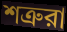
শত্রুরা